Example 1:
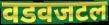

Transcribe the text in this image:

वडवजटल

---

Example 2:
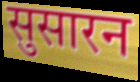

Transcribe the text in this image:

सुसारन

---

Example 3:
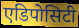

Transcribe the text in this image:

एडिपोसिटी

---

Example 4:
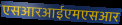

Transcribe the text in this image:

एसआरआईएमएसआर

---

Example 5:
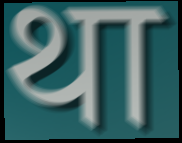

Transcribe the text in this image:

था